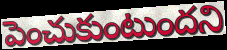
పెంచుకుంటుందని